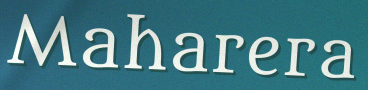
Maharera